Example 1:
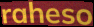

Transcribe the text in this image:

raheso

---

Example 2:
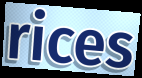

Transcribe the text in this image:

rices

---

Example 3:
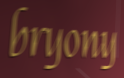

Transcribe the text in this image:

bryony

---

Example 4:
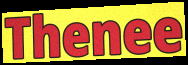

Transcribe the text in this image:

Thenee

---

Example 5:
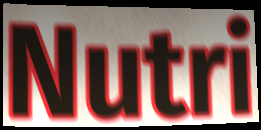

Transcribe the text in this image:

Nutri